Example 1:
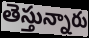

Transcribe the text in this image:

తెస్తున్నారు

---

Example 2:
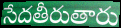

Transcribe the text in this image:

సేదతీరుతారు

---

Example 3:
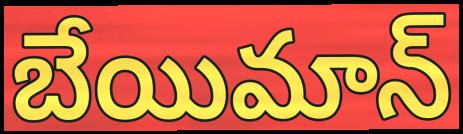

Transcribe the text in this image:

బేయిమాన్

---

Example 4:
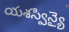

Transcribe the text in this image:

యశస్విన్యై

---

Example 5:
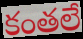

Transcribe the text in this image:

కంతలే